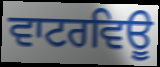
ਵਾਟਰਵਿਊ